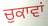
ਚੁਕਾਵਾਂ